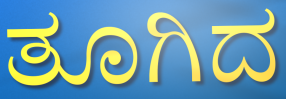
ತೂಗಿದ